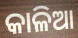
କାଳିଆ